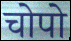
चोपो